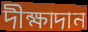
দীক্ষাদান